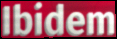
Ibidem